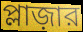
প্লাজ়ার